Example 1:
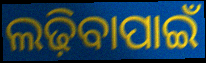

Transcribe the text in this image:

ଲଢ଼ିବାପାଇଁ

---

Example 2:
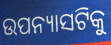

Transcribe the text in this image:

ଉପନ୍ୟାସଟିକୁ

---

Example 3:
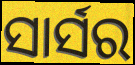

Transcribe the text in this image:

ସାର୍ସର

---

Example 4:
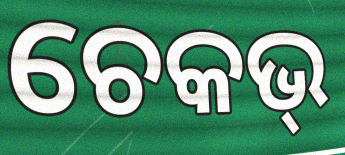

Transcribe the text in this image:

ଚେକଭ୍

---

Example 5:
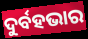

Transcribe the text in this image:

ଦୁର୍ବହଭାର